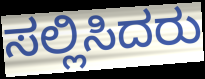
ಸಲ್ಲಿಸಿದರು